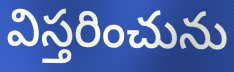
విస్తరించును